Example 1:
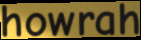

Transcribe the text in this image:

howrah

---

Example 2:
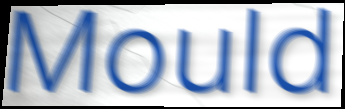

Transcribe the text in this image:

Mould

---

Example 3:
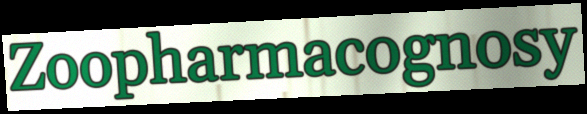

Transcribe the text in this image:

Zoopharmacognosy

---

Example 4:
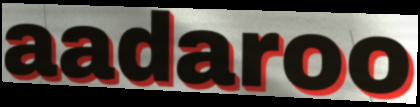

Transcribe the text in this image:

aadaroo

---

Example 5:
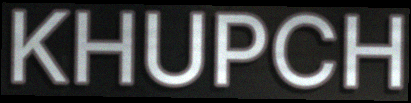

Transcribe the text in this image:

KHUPCH